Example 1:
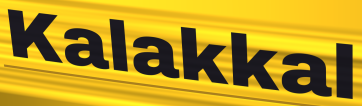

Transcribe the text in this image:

Kalakkal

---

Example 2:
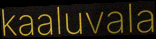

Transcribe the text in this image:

kaaluvala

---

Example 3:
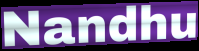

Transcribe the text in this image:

Nandhu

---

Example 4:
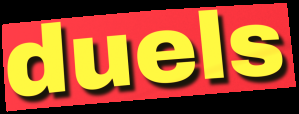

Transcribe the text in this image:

duels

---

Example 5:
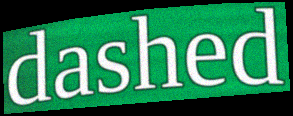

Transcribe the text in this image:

dashed